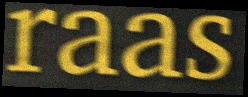
raas